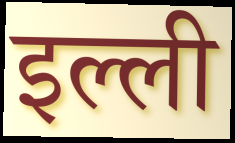
इल्ली